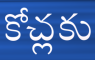
కోచ్లకు